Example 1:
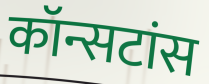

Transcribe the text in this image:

कॉन्सटांस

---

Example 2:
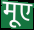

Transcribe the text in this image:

मूए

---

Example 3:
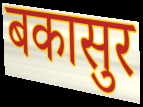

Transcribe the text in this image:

बकासुर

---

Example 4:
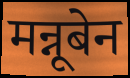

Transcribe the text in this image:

मन्नूबेन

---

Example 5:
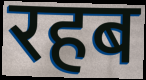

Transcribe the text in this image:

रहब